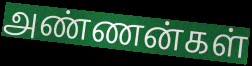
அண்ணன்கள்